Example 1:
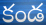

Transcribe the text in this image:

కండ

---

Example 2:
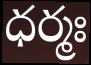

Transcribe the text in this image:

ధర్మః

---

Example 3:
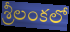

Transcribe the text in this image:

శ్రీలంకలో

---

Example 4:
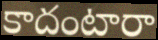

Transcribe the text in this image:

కాదంటారా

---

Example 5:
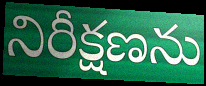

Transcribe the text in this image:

నిరీక్షణను